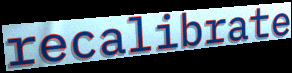
recalibrate